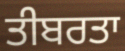
ਤੀਬਰਤਾ